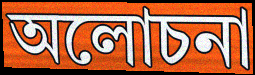
অলোচনা